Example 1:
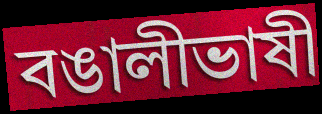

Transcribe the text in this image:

বঙালীভাষী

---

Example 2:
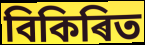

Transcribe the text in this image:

বিকিৰিত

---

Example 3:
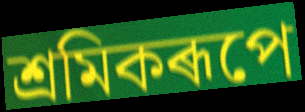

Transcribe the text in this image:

শ্ৰমিকৰূপে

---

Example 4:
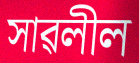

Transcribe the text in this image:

সাৱলীল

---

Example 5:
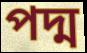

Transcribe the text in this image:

পদ্ম